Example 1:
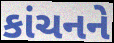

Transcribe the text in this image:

કાંચનને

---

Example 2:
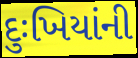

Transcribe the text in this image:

દુઃખિયાંની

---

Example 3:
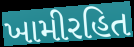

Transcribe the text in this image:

ખામીરહિત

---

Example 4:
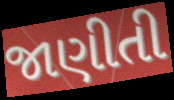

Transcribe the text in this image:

જાણીતી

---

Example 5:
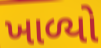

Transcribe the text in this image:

ખાળ્યો